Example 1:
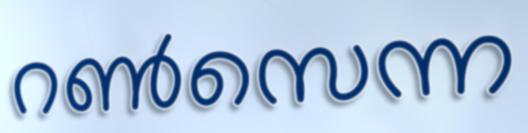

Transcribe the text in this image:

റൺസെന്ന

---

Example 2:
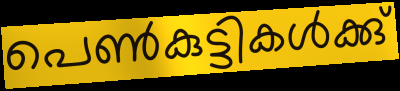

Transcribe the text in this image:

പെൺകുട്ടികൾക്കു്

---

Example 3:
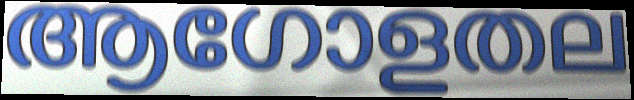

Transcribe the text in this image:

ആഗോളതല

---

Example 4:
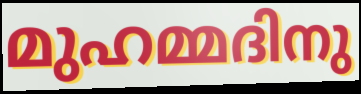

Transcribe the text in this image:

മുഹമ്മദിനു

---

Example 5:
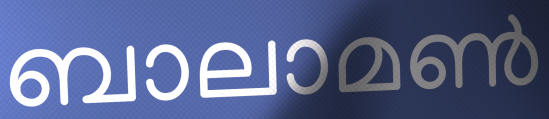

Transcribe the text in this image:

ബാലാമൺ